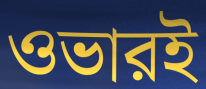
ওভারই